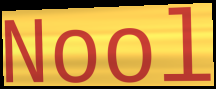
Nool